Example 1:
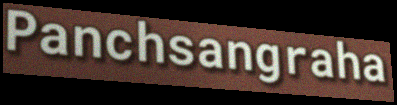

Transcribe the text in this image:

Panchsangraha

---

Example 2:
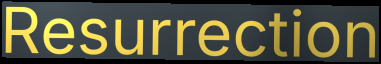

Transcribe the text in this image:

Resurrection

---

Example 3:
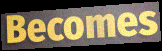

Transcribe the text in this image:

Becomes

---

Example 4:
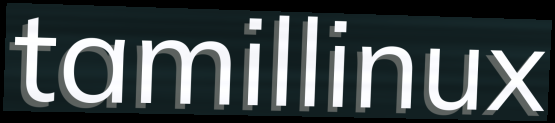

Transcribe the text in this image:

tamillinux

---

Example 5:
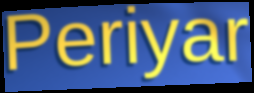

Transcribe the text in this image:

Periyar